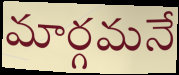
మార్గమనే